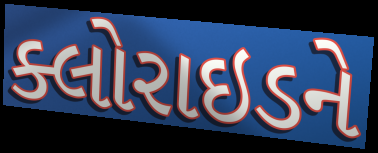
ક્લોરાઇડને